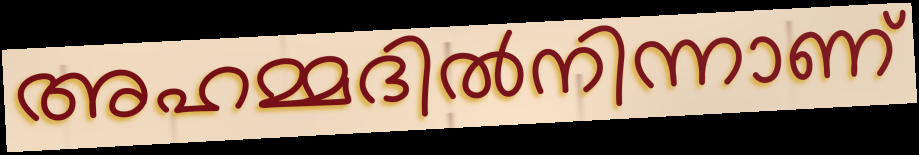
അഹമ്മദിൽനിന്നാണ്